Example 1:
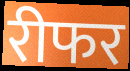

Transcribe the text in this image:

रीफर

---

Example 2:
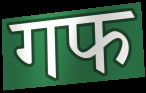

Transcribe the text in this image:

गफ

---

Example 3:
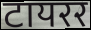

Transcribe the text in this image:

टायरर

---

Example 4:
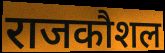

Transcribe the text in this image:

राजकौशल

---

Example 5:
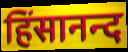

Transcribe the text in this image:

हिंसानन्द